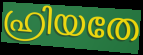
ഹ്രിയതേ